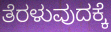
ತೆರಳುವುದಕ್ಕೆ